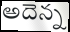
అదెన్న